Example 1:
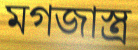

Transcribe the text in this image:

মগজাস্ত্র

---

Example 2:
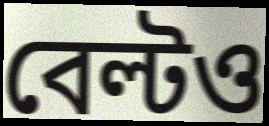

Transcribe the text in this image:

বেল্টও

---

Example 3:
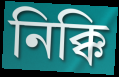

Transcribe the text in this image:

নিক্কি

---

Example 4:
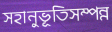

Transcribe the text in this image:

সহানুভূতিসম্পন্ন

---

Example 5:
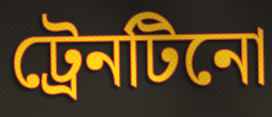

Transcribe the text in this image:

ট্রেনটিনো